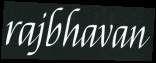
rajbhavan